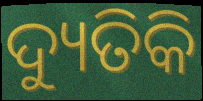
ଦ୍ୟୁତିକି